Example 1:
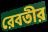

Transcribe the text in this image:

রেবতীর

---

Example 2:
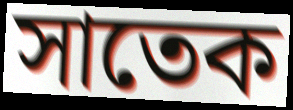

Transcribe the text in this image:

সাতেক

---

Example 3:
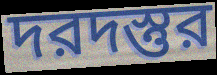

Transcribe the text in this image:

দরদস্তুর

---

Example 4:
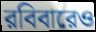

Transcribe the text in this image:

রবিবারেও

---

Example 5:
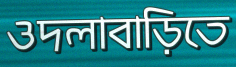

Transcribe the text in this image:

ওদলাবাড়িতে